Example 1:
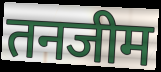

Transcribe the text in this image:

तनजीम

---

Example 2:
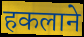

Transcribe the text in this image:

हकलाने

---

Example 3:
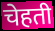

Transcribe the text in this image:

चेहती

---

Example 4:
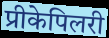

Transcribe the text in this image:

प्रीकेपिलरी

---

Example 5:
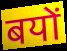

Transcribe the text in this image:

बयों